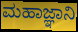
ಮಹಾಜ್ಞಾನಿ